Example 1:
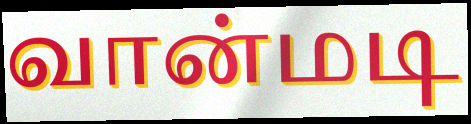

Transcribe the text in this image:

வான்மடி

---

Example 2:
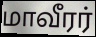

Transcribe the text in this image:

மாவீரர்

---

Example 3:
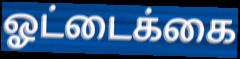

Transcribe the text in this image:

ஓட்டைக்கை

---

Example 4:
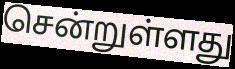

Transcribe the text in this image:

சென்றுள்ளது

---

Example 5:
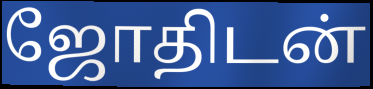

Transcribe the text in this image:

ஜோதிடன்